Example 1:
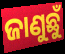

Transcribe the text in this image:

ଜାଣୁଛୁଁ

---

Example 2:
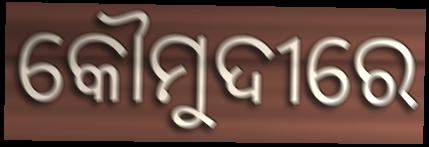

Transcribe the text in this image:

କୌମୁଦୀରେ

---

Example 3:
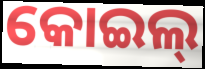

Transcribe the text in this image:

କୋଇଲ୍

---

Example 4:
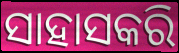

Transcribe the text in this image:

ସାହାସକରି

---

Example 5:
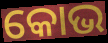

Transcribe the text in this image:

କୋଭ